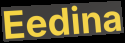
Eedina